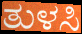
ತುಳಸಿ